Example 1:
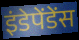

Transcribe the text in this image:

इंडेपेंडेंस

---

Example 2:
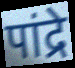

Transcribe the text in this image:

पांद्रे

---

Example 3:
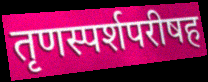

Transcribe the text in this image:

तृणस्पर्शपरीषह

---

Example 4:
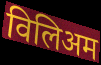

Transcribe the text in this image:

विलिअम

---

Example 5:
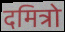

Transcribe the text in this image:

दमित्रो